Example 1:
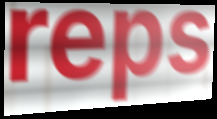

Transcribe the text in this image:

reps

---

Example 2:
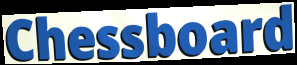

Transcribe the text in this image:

Chessboard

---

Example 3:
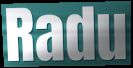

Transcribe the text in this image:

Radu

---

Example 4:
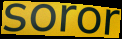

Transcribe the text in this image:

soror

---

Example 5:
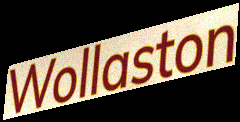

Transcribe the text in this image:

Wollaston